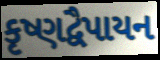
કૃષ્ણદ્વૈપાયન